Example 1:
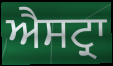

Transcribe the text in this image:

ਐਸਟ੍ਰਾ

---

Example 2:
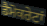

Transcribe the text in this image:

ਡੈਮੋਕਰੇਟਾਂ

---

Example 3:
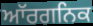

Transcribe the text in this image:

ਆੱਰਗਨਿਕ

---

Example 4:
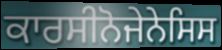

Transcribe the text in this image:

ਕਾਰਸੀਨੋਜੇਨੇਸਿਸ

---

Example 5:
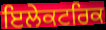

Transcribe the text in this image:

ਇਲੇਕਟਰਿਕ